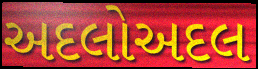
અદલોઅદલ